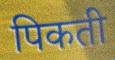
पिकती